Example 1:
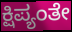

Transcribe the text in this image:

ಕ್ಷಿಪ್ಯಂತೇ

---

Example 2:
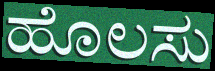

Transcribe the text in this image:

ಹೊಲಸು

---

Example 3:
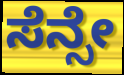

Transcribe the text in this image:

ಸೆನ್ಸೇ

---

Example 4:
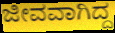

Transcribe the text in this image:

ಜೀವವಾಗಿದ್ದ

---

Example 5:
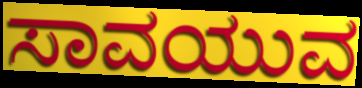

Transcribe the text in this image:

ಸಾವಯುವ